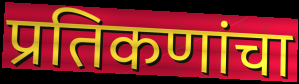
प्रतिकणांचा